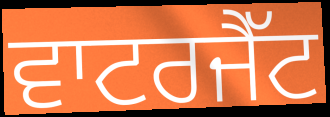
ਵਾਟਰਜੈੱਟ